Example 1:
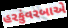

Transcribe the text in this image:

હરકુંવરબાએ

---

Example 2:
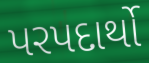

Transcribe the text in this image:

પરપદાર્થો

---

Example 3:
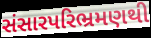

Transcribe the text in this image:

સંસારપરિભ્રમણથી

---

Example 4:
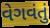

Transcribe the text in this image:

વેગવંતું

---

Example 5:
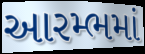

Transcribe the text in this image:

આરમ્ભમાં